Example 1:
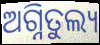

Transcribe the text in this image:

ଅଗ୍ନିତୁଲ୍ୟ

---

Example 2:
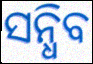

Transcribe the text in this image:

ସନ୍ଧିବ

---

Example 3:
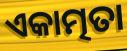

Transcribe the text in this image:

ଏକାତ୍ମତା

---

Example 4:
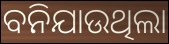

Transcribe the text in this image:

ବନିଯାଉଥିଲା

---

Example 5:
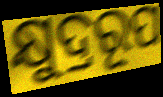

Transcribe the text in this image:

କ୍ଷୁଦ୍ରରୂପ